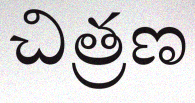
చిత్రణ